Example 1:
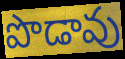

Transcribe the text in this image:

పొడావు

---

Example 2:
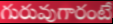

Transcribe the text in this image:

గురువుగారంటే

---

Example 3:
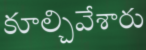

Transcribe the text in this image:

కూల్చివేశారు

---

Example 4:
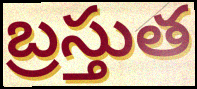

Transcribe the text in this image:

బ్రస్తుత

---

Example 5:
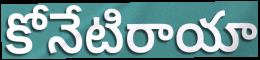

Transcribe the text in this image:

కోనేటిరాయా